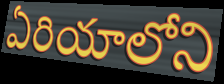
ఏరియాలోని